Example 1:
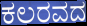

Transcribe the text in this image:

ಕಲರವದ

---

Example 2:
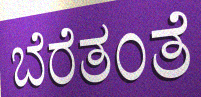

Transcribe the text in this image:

ಬೆರೆತಂತೆ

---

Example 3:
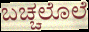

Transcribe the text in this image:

ಬಚ್ಚಲೊಲೆ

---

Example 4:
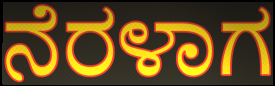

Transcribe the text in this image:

ನೆರಳಾಗ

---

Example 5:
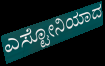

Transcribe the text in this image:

ಎಸ್ಟೋನಿಯಾದ